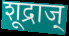
शूद्राज्